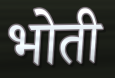
भोती